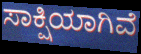
ಸಾಕ್ಷಿಯಾಗಿವೆ